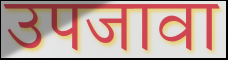
उपजावा